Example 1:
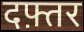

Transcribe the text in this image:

दफ़्तर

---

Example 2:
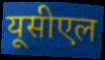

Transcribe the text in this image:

यूसीएल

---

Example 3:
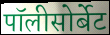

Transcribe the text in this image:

पॉलीसोर्बेट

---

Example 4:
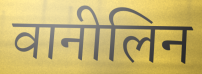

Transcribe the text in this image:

वानीलिन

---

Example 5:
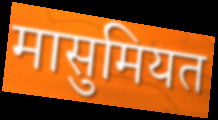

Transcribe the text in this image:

मासुमियत